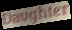
Daughter